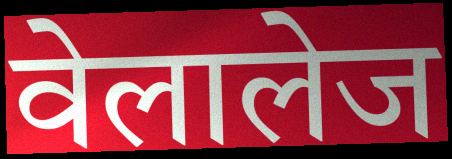
वेलालेज